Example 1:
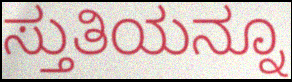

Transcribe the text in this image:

ಸ್ತುತಿಯನ್ನೂ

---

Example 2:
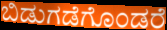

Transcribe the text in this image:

ಬಿಡುಗಡೆಗೊಂಡರೆ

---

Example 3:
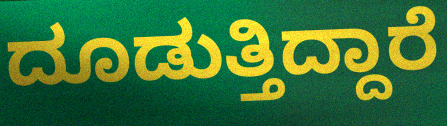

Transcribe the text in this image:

ದೂಡುತ್ತಿದ್ದಾರೆ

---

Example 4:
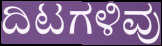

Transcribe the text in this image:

ದಿಟಗಳಿವು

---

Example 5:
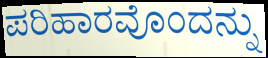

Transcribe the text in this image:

ಪರಿಹಾರವೊಂದನ್ನು